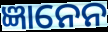
ଜ୍ଞାନେନ